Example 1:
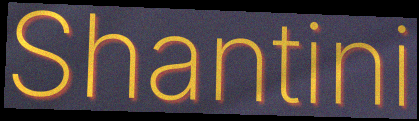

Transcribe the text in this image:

Shantini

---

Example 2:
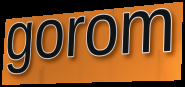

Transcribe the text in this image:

gorom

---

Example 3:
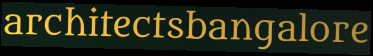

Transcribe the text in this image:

architectsbangalore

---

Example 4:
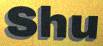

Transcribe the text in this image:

Shu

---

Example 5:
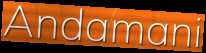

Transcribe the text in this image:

Andamani